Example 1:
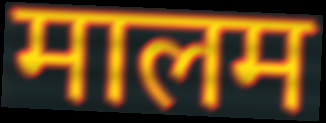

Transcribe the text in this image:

मालम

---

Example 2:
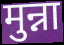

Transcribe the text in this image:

मुन्ना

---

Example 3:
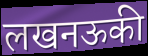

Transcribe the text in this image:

लखनऊकी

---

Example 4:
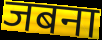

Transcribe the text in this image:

जबना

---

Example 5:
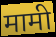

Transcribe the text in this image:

मामी